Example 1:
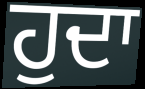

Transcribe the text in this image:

ਹੁਦਾ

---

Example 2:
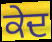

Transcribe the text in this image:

ਕੇਦ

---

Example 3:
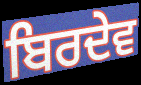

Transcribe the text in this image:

ਬਿਰਦੇਵ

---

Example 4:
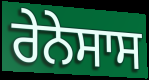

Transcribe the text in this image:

ਰੇਨੇਸਾਸ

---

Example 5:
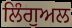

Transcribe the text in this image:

ਲਿੰਗੁਅਲ